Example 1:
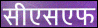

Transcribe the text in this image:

सीएसएफ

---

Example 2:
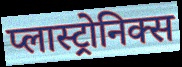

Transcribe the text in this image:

प्लास्ट्रोनिक्स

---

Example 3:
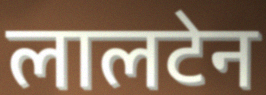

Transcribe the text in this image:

लालटेन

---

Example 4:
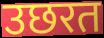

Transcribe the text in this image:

उछरत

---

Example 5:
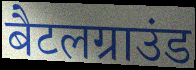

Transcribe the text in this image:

बैटलग्राउंड